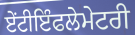
ਏੰਟੀਇੰਫਲੇਮੇਟਰੀ